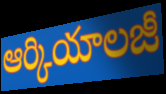
ఆర్కియాలజీ